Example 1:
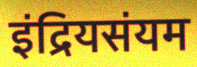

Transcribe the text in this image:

इंद्रियसंयम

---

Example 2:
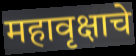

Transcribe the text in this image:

महावृक्षाचे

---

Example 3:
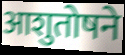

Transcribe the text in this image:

आशुतोषने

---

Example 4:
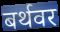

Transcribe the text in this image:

बर्थवर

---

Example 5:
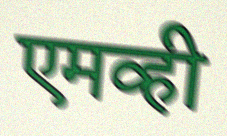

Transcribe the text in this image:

एमव्ही